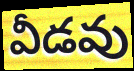
వీడవు